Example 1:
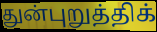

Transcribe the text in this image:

துன்புறுத்திக்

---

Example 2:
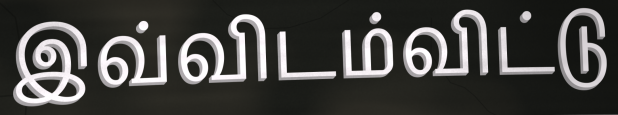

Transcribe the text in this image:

இவ்விடம்விட்டு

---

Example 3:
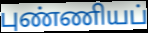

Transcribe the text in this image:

புண்ணியப்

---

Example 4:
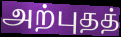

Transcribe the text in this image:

அற்புதத்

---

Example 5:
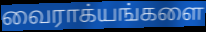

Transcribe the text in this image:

வைராக்யங்களை